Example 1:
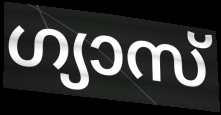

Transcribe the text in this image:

ഗ്യാസ്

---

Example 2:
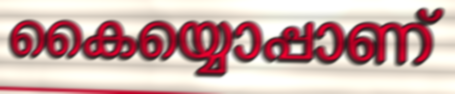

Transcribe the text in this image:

കൈയ്യൊപ്പാണ്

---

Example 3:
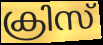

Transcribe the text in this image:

ക്രിസ്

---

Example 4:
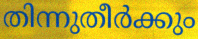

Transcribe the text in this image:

തിന്നുതീർക്കും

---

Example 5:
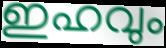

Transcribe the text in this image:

ഇഹവും